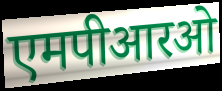
एमपीआरओ